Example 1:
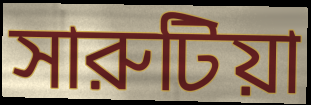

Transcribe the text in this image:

সারুটিয়া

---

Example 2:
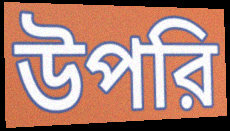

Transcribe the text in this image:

উপরি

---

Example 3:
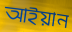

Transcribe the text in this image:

আইয়ান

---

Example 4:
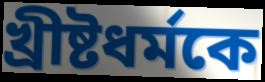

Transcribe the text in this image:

খ্রীষ্টধর্মকে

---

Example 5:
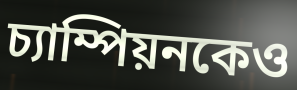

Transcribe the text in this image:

চ্যাম্পিয়নকেও